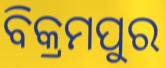
ବିକ୍ରମପୁର